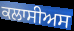
ਕਲਾਸੀਅਸ